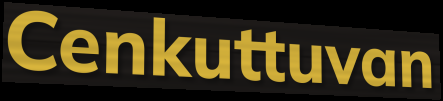
Cenkuttuvan